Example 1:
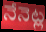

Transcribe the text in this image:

నేనెట్ల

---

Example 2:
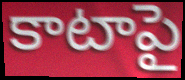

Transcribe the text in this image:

కాటాపై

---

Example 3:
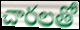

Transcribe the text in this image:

చారలతో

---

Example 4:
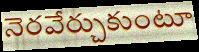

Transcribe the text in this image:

నెరవేర్చుకుంటూ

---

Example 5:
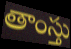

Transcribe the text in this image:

తాంస్తు